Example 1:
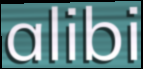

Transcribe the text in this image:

alibi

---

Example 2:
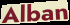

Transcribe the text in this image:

Alban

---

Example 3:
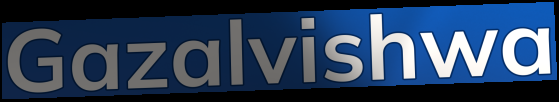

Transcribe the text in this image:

Gazalvishwa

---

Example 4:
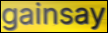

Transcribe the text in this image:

gainsay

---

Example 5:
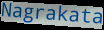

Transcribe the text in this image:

Nagrakata